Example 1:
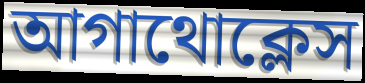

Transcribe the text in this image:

আগাথোক্লেস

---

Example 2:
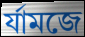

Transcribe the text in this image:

র্যামজে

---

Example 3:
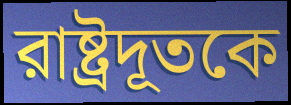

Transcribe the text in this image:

রাষ্ট্রদূতকে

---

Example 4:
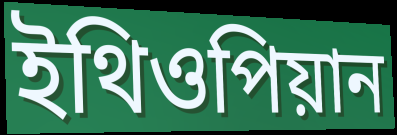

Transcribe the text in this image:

ইথিওপিয়ান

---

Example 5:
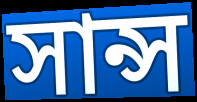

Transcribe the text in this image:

সান্স